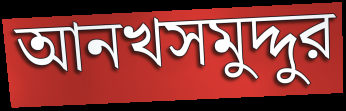
আনখসমুদ্দুর